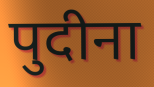
पुदीना